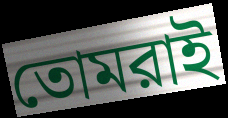
তোমরাই